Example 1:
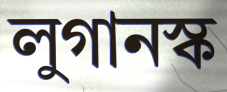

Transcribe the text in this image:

লুগানস্ক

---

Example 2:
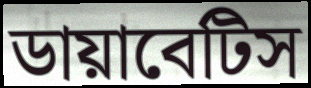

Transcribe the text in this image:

ডায়াবেটিস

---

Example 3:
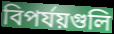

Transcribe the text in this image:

বিপর্যয়গুলি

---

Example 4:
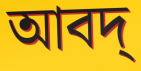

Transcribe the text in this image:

আবদ্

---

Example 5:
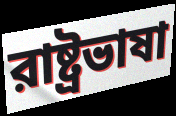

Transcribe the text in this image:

রাষ্ট্রভাষা